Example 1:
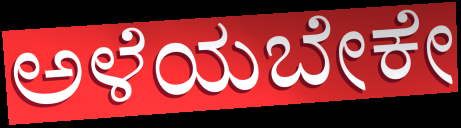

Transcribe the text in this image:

ಅಳೆಯಬೇಕೇ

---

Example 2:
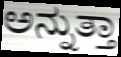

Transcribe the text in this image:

ಅನ್ನುತ್ತಾ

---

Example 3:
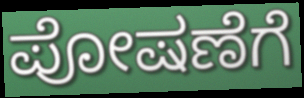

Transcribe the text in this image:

ಪೋಷಣೆಗೆ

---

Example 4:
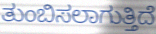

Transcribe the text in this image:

ತುಂಬಿಸಲಾಗುತ್ತಿದೆ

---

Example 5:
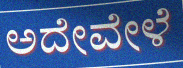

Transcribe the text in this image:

ಅದೇವೇಳೆ